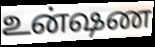
உன்ஷண